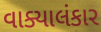
વાક્યાલંકાર